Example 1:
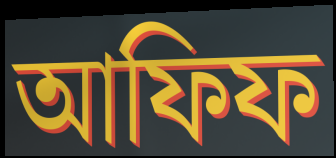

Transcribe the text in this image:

আফিফ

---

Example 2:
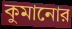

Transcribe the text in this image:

কুমানোর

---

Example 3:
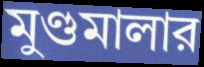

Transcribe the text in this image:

মুণ্ডমালার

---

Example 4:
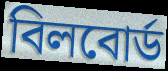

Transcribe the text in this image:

বিলবোর্ড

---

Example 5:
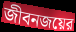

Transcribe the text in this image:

জীবনজয়ের